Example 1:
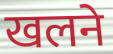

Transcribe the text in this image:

खलने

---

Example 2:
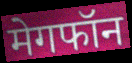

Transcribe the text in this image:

मेगफॉन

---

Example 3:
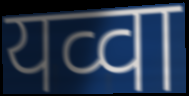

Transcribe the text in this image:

यव्वा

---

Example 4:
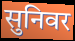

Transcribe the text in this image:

सुनिवर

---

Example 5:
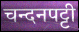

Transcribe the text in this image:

चन्दनपट्टी